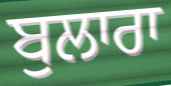
ਬੁਲਾਰਾ